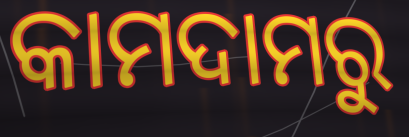
କାମଦାମରୁ